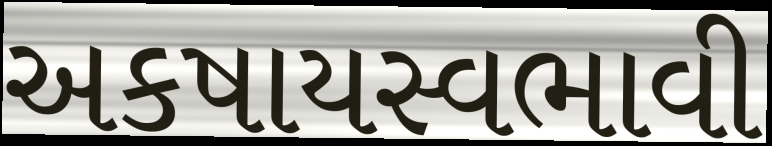
અકષાયસ્વભાવી